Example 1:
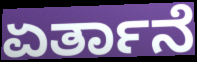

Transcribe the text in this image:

ಏರ್ತಾನೆ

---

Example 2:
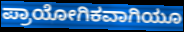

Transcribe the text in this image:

ಪ್ರಾಯೋಗಿಕವಾಗಿಯೂ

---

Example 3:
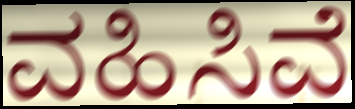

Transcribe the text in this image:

ವಹಿಸಿವೆ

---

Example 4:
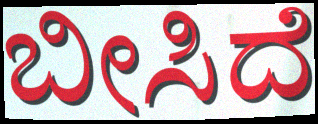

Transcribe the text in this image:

ಬೀಸಿದೆ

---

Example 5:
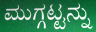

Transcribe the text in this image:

ಮುಗ್ಗಟ್ಟನ್ನು